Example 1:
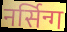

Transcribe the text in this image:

नर्सिन्ग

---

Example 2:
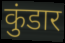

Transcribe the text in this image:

कुंडार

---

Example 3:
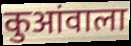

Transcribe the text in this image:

कुआंवाला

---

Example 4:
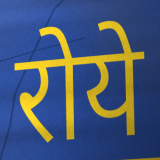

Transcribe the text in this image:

रोये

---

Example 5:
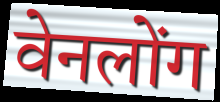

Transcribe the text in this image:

वेनलोंग